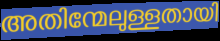
അതിന്മേലുള്ളതായി